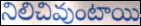
నిలిచివుంటాయి